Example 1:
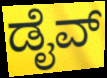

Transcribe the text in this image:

ಡೈವ್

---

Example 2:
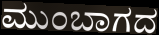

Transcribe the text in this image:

ಮುಂಬಾಗದ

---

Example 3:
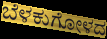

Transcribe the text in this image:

ಬೆಳಕುಗೋಳದ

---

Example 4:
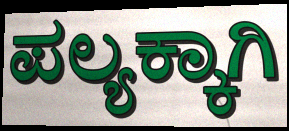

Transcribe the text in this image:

ಪಲ್ಯಕ್ಕಾಗಿ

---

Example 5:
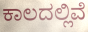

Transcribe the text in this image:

ಕಾಲದಲ್ಲಿವೆ